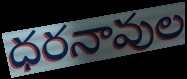
ధరనావుల